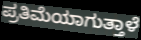
ಪ್ರತಿಮೆಯಾಗುತ್ತಾಳೆ